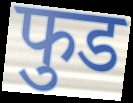
फुड